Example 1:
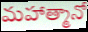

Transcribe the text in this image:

మహాత్మానో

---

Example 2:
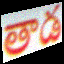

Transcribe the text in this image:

తాడ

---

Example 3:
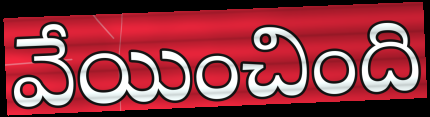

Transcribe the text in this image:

వేయించింది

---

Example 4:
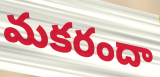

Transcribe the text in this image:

మకరందా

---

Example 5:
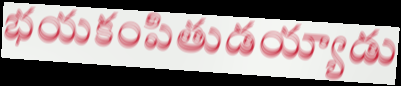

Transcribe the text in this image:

భయకంపితుడయ్యాడు